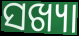
ସଖ୍ୟା